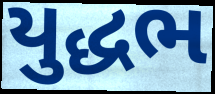
યુદ્ધભ